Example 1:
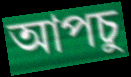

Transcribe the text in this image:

আপচু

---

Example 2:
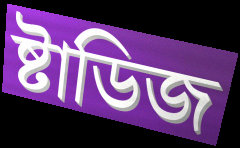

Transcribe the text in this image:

ষ্টাডিজ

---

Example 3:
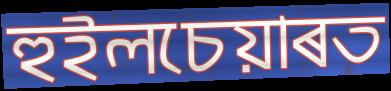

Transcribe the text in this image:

হুইলচেয়াৰত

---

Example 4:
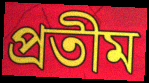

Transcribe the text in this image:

প্ৰতীম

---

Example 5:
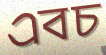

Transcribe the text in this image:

এবচ